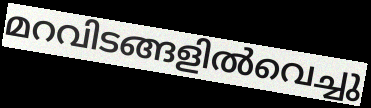
മറവിടങ്ങളിൽവെച്ചു